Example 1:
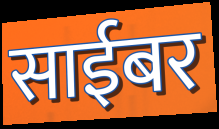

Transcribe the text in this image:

साईबर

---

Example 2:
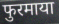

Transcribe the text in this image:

फुरमाया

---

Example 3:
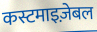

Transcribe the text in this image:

कस्टमाइज़ेबल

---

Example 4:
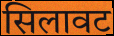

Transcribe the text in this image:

सिलावट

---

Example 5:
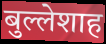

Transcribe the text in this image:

बुल्लेशाह